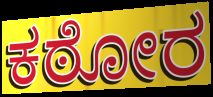
ಕಠೋರ